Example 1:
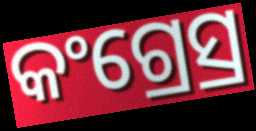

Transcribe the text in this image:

କଂଗ୍ରେସ୍ର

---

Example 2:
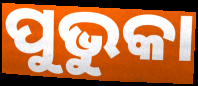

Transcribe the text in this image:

ପୁଭୁକା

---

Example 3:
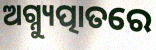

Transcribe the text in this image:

ଅଗ୍ନ୍ୟୁତ୍ପାତରେ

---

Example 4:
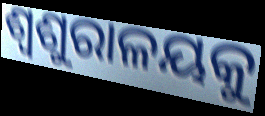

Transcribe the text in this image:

ଶ୍ୱଶୁରାଳୟକୁ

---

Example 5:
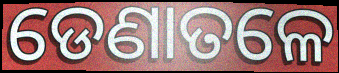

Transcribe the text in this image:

ଡେଣାତଳେ